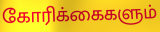
கோரிக்கைகளும்